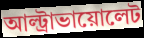
আল্ট্রাভায়োলেট